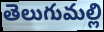
తెలుగుమల్లి